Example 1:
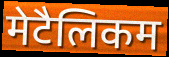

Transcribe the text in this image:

मेटैलिकम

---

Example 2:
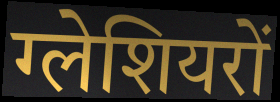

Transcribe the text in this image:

ग्‍लेशियरों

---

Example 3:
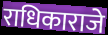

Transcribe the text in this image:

राधिकाराजे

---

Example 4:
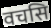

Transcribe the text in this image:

वचसि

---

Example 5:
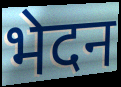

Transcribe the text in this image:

भेदन